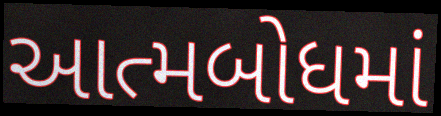
આત્મબોધમાં